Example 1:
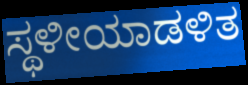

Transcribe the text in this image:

ಸ್ಥಳೀಯಾಡಳಿತ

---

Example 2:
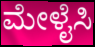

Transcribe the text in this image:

ಮೇಳೈಸಿ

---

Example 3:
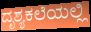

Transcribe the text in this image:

ದೃಶ್ಯಕಲೆಯಲ್ಲಿ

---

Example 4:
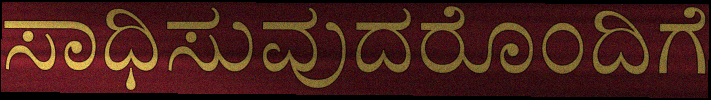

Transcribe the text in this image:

ಸಾಧಿಸುವುದರೊಂದಿಗೆ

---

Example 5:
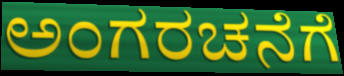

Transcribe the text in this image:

ಅಂಗರಚನೆಗೆ